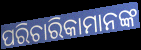
ପରିଚାରିକାମାନଙ୍କ